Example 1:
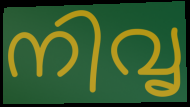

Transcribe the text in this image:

നിവൃ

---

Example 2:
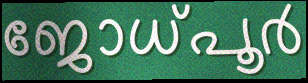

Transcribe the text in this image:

ജോധ്പൂർ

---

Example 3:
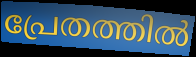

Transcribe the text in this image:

പ്രേതത്തിൽ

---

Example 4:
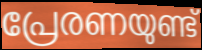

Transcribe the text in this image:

പ്രേരണയുണ്ട്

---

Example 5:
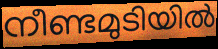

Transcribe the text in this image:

നീണ്ടമുടിയിൽ